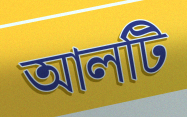
আলটি